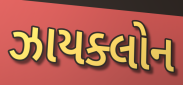
ઝાયક્લોન